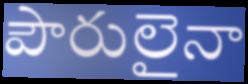
పౌరులైనా